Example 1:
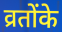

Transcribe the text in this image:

व्रतोंके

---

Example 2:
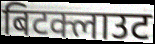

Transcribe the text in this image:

बिटक्लाउट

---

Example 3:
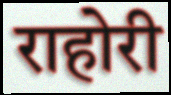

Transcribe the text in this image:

राहोरी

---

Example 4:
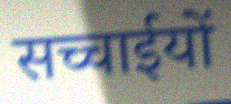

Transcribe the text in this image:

सच्चाईयों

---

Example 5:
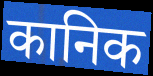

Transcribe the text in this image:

कानिक